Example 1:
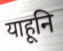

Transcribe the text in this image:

याहूनि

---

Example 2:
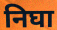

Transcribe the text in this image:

निघा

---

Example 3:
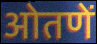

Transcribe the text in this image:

ओतणें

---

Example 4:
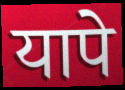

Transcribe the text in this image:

यापे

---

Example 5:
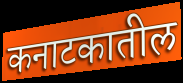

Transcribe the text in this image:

कनाटकातील